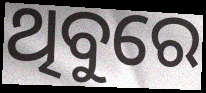
ଥିବୁରେ